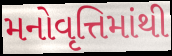
મનોવૃત્તિમાંથી